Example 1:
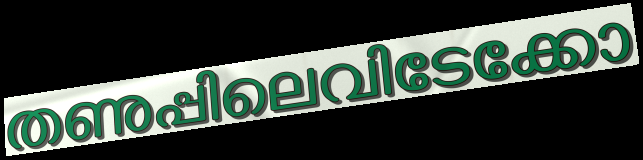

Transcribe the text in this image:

തണുപ്പിലെവിടേക്കോ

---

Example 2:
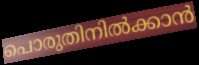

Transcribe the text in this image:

പൊരുതിനിൽക്കാൻ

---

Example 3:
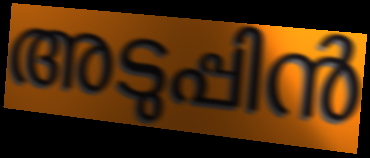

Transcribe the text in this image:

അടുപ്പിൻ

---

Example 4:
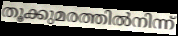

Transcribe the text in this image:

തൂക്കുമരത്തിൽനിന്ന്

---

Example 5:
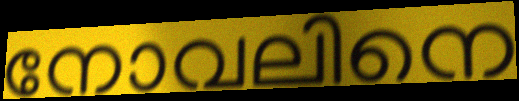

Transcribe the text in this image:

നോവലിനെ